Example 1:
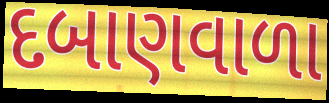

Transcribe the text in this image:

દબાણવાળા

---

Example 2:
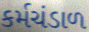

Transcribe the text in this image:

કર્મચંડાળ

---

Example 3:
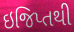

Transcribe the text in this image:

ઇજિપ્તથી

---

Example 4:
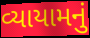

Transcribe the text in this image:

વ્યાયામનું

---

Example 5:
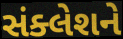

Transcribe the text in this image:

સંક્લેશને